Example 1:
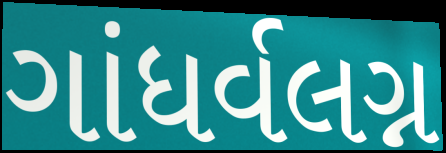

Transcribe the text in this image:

ગાંધર્વલગ્ન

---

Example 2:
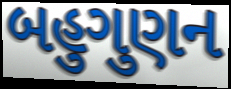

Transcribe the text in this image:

બહુગુણન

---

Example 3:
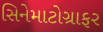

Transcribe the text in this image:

સિનેમાટોગ્રાફર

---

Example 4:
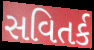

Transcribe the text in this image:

સવિતર્ક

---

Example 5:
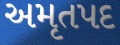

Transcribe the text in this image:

અમૃતપદ